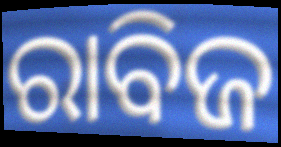
ରାବିଜ